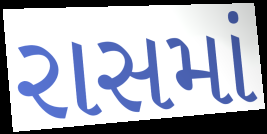
રાસમાં